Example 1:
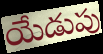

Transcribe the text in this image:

యేడుపు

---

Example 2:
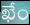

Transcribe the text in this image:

ఖేం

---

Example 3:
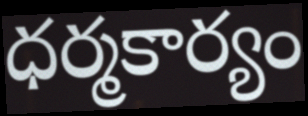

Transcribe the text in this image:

ధర్మకార్యం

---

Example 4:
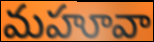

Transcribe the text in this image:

మహూవా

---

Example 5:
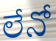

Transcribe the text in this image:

లేనో